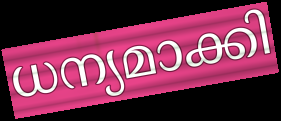
ധന്യമാക്കി